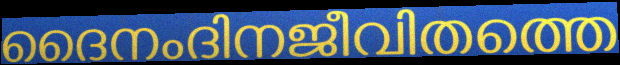
ദൈനംദിനജീവിതത്തെ